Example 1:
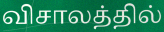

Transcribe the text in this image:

விசாலத்தில்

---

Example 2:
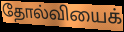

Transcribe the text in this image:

தோல்வியைக்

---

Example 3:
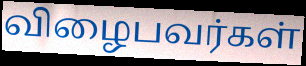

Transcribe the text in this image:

விழைபவர்கள்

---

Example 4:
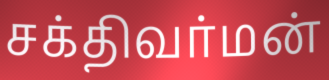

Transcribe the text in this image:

சக்திவர்மன்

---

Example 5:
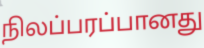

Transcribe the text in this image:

நிலப்பரப்பானது